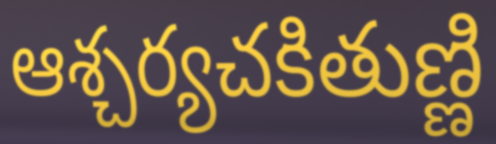
ఆశ్చర్యచకితుణ్ణి